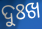
ଦୁଃଖ